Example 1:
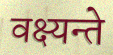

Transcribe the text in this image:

वक्ष्यन्ते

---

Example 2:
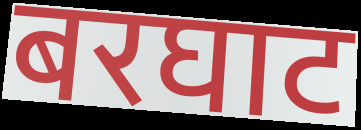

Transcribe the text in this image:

बरघाट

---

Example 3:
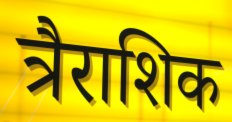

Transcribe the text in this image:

त्रैराशिक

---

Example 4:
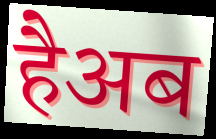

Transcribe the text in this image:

हैअब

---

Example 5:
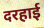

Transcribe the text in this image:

दरहाई